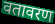
वतावरण